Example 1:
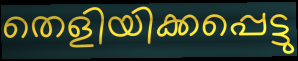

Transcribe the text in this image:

തെളിയിക്കപ്പെട്ടു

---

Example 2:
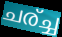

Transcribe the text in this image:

ചര്ച്ച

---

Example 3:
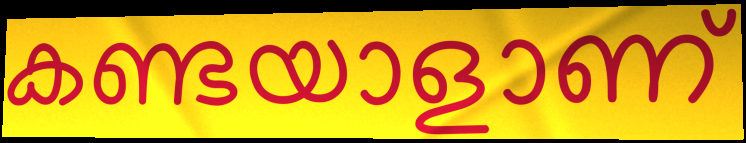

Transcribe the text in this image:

കണ്ടയാളാണ്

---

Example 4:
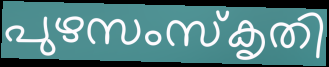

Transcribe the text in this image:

പുഴസംസ്കൃതി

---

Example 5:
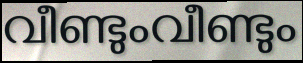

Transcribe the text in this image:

വീണ്ടുംവീണ്ടും